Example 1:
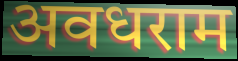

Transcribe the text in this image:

अवधराम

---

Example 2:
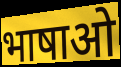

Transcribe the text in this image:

भाषाओ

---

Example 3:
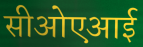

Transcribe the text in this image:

सीओएआई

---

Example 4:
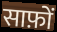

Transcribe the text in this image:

साफ़ों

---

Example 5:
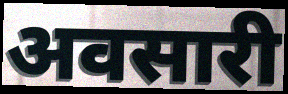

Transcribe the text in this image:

अवसारी